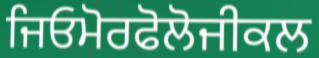
ਜਿਓਮੋਰਫੋਲੋਜੀਕਲ